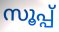
സൂപ്പ്